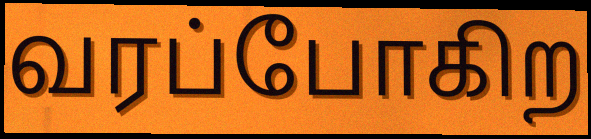
வரப்போகிற